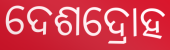
ଦେଶଦ୍ରୋହ